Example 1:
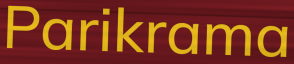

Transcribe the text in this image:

Parikrama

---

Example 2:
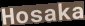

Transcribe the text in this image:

Hosaka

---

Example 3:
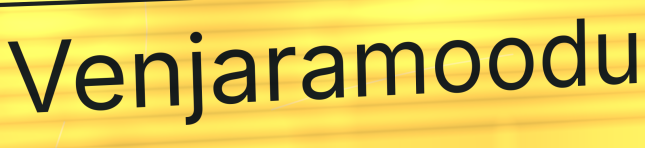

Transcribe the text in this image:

Venjaramoodu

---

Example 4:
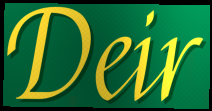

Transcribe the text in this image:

Deir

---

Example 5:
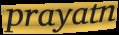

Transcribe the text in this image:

prayatn